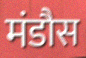
मंडौस